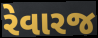
રેવારજ